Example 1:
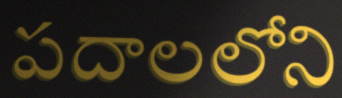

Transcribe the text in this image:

పదాలలోని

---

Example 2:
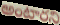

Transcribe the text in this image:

అంటారని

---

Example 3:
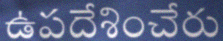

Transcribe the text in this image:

ఉపదేశించేరు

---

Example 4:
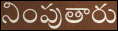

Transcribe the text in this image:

నింపుతారు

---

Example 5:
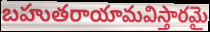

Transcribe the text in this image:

బహుతరాయామవిస్తారమై